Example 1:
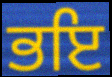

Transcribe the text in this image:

ਭਇ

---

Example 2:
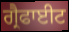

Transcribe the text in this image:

ਗ੍ਰੈਫਾਈਟ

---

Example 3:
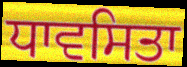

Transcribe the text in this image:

ਧਾਵਸਿਤਾ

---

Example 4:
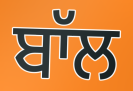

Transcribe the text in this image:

ਬਾੱਲ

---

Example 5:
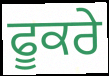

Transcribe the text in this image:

ਫੂਕਰੇ